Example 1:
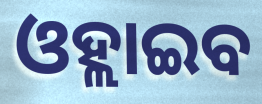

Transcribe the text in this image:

ଓହ୍ଲାଇବ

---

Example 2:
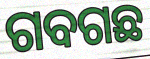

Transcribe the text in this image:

ଗବଗଛ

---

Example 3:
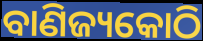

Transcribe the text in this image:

ବାଣିଜ୍ୟକୋଠି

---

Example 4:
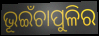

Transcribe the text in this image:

ଭୂଇଁଚାପୁଳିର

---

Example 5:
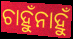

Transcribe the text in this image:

ଚାହୁଁନାହୁଁ